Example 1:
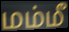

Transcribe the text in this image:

மம்மீ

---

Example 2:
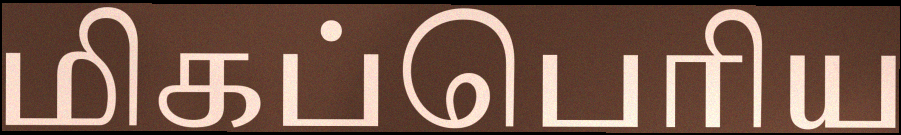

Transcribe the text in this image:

மிகப்பெரிய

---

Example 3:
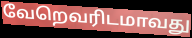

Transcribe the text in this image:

வேறெவரிடமாவது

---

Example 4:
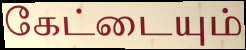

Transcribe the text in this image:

கேட்டையும்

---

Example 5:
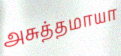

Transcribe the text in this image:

அசுத்தமாயா